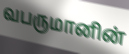
வபருமானின்